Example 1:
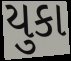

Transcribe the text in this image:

યુકા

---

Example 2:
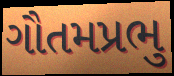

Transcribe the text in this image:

ગૌતમપ્રભુ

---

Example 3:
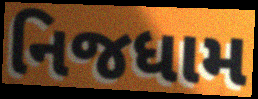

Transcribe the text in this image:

નિજધામ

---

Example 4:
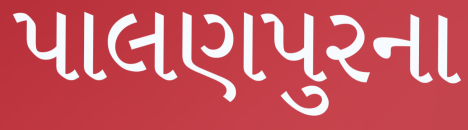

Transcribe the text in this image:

પાલણપુરના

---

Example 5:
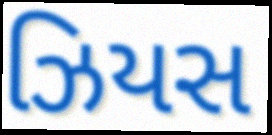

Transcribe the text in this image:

ઝિયસ